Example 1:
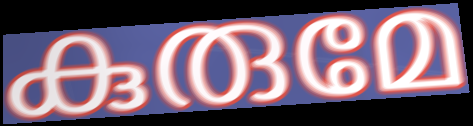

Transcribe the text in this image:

കുരുമേ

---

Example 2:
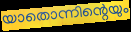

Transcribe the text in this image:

യാതൊന്നിന്റെയും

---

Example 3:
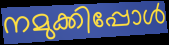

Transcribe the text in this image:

നമുക്കിപ്പോൾ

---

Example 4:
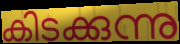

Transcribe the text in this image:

കിടക്കുന്നു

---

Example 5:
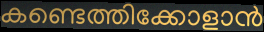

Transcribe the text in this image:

കണ്ടെത്തിക്കോളാൻ